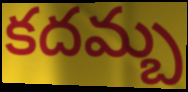
కదమ్బ